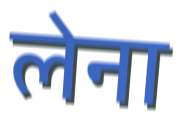
लेना